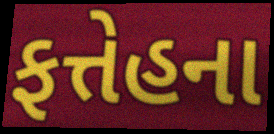
ફત્તેહના